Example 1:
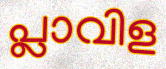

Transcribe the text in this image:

പ്ലാവിള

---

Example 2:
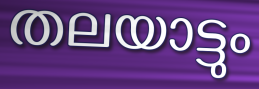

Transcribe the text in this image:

തലയാട്ടും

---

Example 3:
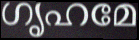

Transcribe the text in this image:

ഗൃഹമേ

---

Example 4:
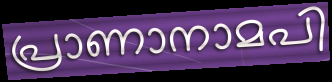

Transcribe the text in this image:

പ്രാണാനാമപി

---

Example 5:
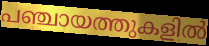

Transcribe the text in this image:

പഞ്ചായത്തുകളിൽ